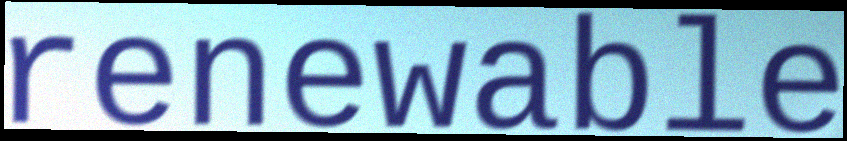
renewable